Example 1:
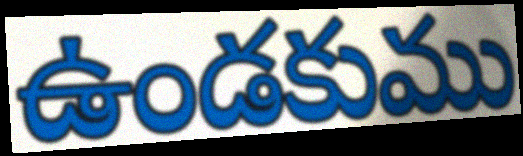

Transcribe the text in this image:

ఉండకుము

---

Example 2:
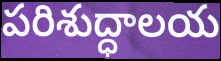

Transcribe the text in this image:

పరిశుద్ధాలయ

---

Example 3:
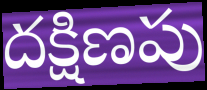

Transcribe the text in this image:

దక్షిణపు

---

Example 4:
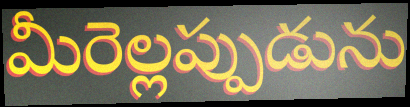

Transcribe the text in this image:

మీరెల్లప్పుడును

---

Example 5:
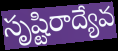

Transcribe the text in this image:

సృష్టిరాద్యేవ